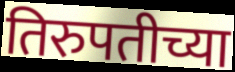
तिरुपतीच्या